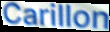
Carillon